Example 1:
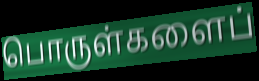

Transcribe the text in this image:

பொருள்களைப்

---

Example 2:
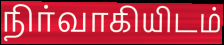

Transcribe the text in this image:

நிர்வாகியிடம்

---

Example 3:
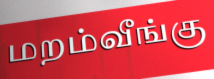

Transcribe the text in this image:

மறம்வீங்கு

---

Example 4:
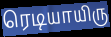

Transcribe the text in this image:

ரெடியாயிரு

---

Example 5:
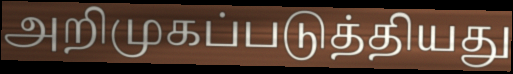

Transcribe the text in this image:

அறிமுகப்படுத்தியது